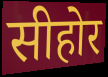
सीहोर